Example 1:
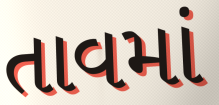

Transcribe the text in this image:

તાવમાં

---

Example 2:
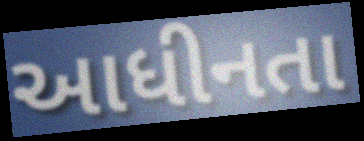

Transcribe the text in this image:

આધીનતા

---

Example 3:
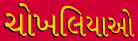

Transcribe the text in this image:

ચોખલિયાઓ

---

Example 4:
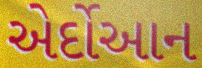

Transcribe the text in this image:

એર્દોઆન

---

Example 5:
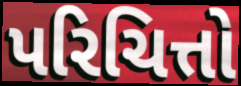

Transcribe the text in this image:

પરિચિત્તો